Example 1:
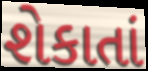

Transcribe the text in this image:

શેકાતાં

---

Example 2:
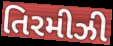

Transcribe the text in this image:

તિરમીઝી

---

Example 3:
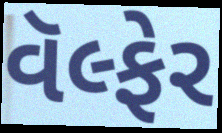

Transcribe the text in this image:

વૅલ્ફેર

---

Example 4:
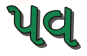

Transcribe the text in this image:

પવ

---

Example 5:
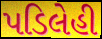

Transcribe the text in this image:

પડિલેહી